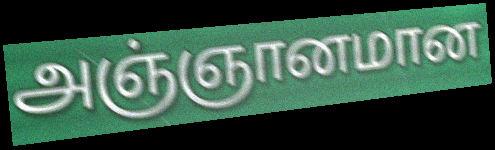
அஞ்ஞானமான